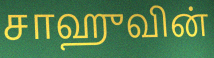
சாஹுவின்